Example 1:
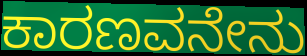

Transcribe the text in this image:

ಕಾರಣವನೇನು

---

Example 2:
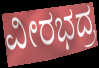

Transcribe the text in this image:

ವೀರಭದ್ರ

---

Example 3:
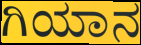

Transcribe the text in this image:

ಗಿಯಾನ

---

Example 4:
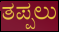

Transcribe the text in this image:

ತಪ್ಪಲು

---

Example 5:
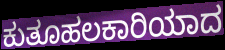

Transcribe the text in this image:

ಕುತೂಹಲಕಾರಿಯಾದ